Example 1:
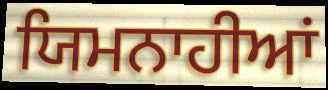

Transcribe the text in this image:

ਯਿਮਨਾਹੀਆਂ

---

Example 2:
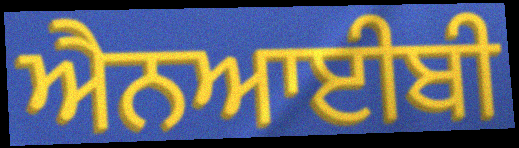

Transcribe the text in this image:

ਐਨਆਈਬੀ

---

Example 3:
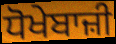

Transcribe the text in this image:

ਧੋਖੇਬਾਜ਼ੀ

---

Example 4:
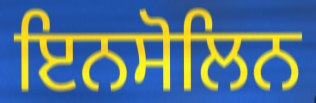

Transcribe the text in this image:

ਇਨਸੋਲਿਨ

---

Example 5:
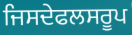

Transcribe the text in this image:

ਜਿਸਦੇਫਲਸਰੂਪ